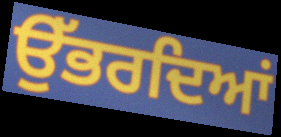
ਉੱਭਰਦਿਆਂ